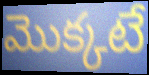
మొక్కటే